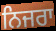
ਨਿਜਰਾ